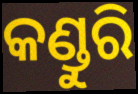
କଣ୍ଡୁରି